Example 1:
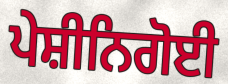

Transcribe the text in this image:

ਪੇਸ਼ੀਨਿਗੋਈ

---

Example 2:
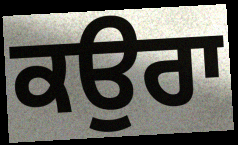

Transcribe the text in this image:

ਕਉਰਾ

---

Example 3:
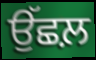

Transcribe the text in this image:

ਉੱਛਲ਼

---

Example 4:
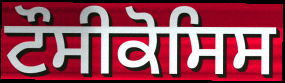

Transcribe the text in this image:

ਟੌਸੀਕੋਸਿਸ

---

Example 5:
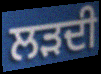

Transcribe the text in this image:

ਲੜਦੀ